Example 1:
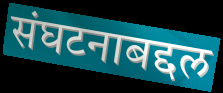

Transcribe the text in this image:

संघटनाबद्दल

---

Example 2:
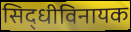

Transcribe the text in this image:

सिद्धीविनायक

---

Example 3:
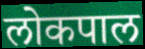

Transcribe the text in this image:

लोकपाल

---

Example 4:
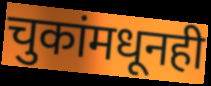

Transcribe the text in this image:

चुकांमधूनही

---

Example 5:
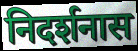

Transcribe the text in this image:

निदर्शनास